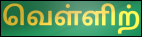
வெள்ளிற்